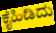
ಕೈಹಿಡಿದು